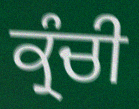
ਕ੍ਰੰਚੀ